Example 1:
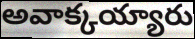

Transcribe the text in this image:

అవాక్కయ్యారు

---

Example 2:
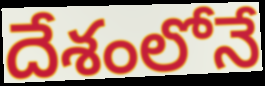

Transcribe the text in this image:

దేశంలోనే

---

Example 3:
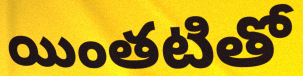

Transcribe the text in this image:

యింతటితో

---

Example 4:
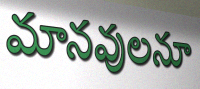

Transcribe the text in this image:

మానవులనూ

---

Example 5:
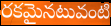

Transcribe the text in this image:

రకమైనటువంటి